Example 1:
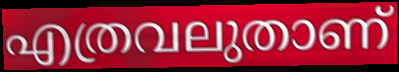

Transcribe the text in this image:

എത്രവലുതാണ്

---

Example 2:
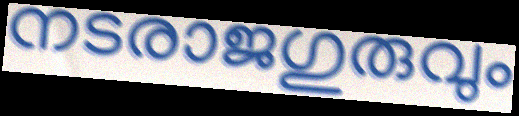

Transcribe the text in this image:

നടരാജഗുരുവും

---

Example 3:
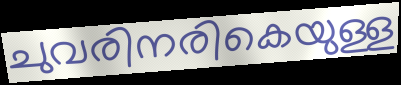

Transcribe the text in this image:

ചുവരിനരികെയുള്ള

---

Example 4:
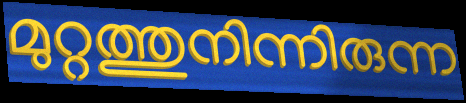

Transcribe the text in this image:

മുറ്റത്തുനിന്നിരുന്ന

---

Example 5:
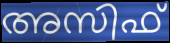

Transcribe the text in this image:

അസിഫ്